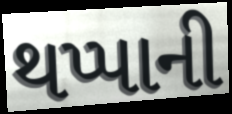
થપ્પાની